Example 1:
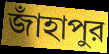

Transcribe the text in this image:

জাঁহাপুর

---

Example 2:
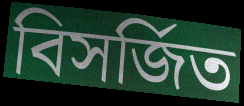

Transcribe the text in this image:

বিসর্জিত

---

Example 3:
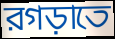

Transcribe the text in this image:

রগড়াতে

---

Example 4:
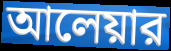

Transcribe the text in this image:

আলেয়ার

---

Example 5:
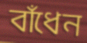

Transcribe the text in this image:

বাঁধেন